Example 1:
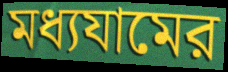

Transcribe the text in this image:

মধ্যযামের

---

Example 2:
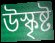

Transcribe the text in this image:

উস্কৃষ্ট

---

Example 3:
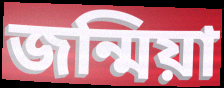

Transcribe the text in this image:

জন্মিয়া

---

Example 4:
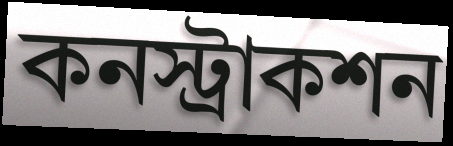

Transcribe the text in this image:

কনস্ট্রাকশন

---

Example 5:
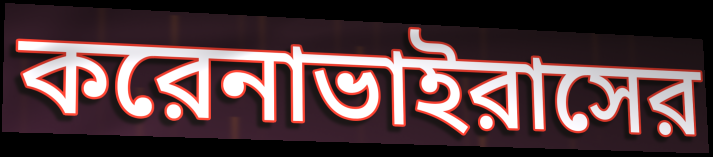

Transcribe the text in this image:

করেনাভাইরাসের